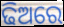
ଢିଅରେ